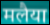
मलैया